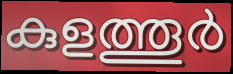
കുളത്തൂർ